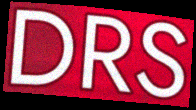
DRS